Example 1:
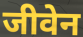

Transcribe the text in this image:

जीवेन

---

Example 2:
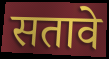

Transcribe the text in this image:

सतावे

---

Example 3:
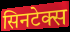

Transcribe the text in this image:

सिनटेक्स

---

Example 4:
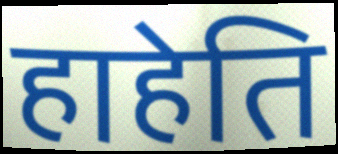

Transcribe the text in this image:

हाहेति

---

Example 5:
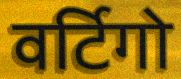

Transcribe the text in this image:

वर्टिगो